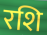
रशि